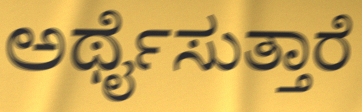
ಅರ್ಥೈಸುತ್ತಾರೆ